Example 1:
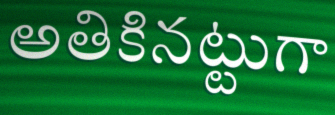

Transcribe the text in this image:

అతికినట్టుగా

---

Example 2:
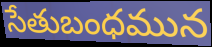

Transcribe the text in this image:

సేతుబంధమున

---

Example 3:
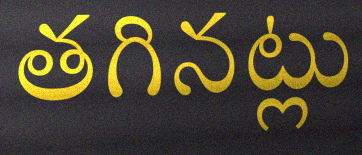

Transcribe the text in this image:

తగినట్లు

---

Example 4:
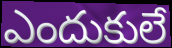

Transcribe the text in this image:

ఎందుకులే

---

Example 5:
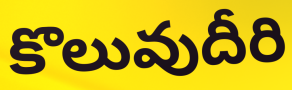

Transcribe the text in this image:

కొలువుదీరి